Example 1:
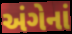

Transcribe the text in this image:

અંગેનાં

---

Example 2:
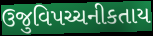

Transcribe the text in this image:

ઉજુવિપચ્ચનીકતાય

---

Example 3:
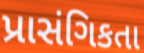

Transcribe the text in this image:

પ્રાસંગિકતા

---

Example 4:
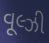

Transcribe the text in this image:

વૂલ્ઝી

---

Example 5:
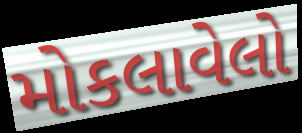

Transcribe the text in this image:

મોકલાવેલો